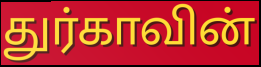
துர்காவின்